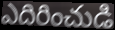
ఎదిరించుడి